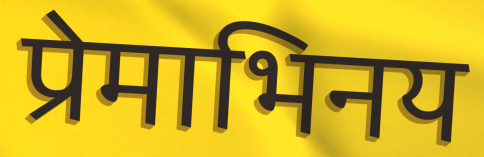
प्रेमाभिनय